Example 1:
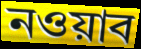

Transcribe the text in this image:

নওয়াব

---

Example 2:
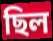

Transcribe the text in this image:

ছিল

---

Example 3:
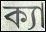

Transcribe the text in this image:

ক্যা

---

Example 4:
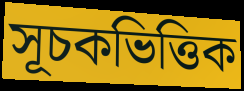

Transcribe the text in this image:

সূচকভিত্তিক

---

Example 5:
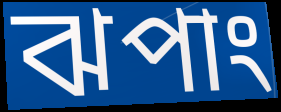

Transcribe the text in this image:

ঝপাং